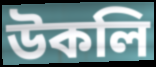
উকলি